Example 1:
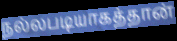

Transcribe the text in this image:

நல்லபடியாகத்தான்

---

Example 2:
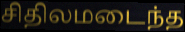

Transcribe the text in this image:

சிதிலமடைந்த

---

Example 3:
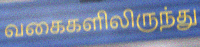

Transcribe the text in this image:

வகைகளிலிருந்து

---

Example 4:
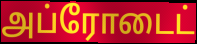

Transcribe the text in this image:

அப்ரோடைட்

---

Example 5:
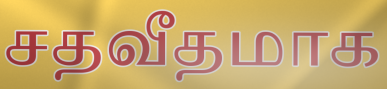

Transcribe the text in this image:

சதவீதமாக